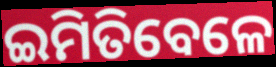
ଇମିତିବେଳେ